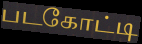
படகோட்டி